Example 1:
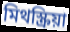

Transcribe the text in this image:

মিথস্ক্রিয়া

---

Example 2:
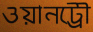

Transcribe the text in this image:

ওয়ানট্রৌ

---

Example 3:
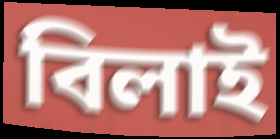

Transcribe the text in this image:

বিলাই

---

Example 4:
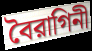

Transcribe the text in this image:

বৈরাগিনী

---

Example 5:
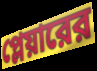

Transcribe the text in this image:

প্লেয়ারের